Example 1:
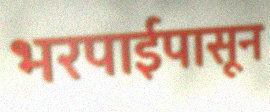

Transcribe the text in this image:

भरपाईपासून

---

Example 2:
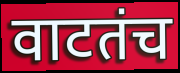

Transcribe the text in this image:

वाटतंच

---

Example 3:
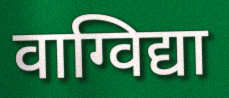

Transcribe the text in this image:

वाग्विद्या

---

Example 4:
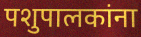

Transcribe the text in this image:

पशुपालकांना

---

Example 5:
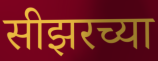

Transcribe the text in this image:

सीझरच्या